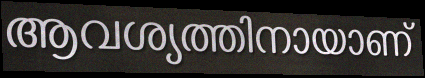
ആവശ്യത്തിനായാണ്